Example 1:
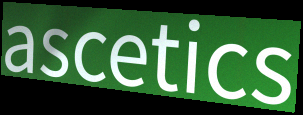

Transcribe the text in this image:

ascetics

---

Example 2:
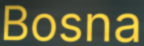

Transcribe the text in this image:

Bosna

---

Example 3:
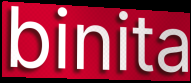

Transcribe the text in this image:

binita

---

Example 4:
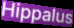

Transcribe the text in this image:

Hippalus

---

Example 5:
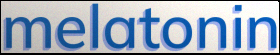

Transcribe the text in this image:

melatonin